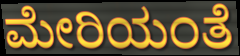
ಮೇರಿಯಂತೆ